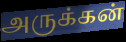
அருக்கன்